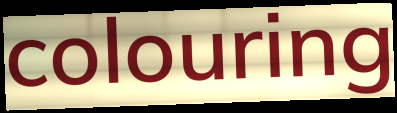
colouring